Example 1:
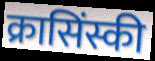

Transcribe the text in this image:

क्रासिंस्की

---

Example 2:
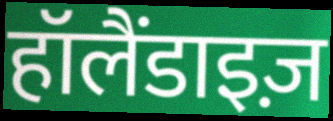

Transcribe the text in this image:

हॉलैंडाइज़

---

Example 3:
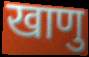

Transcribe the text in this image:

खाणु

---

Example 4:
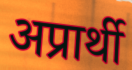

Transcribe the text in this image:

अप्रार्थी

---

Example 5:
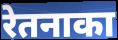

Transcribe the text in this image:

रेतनाका